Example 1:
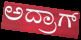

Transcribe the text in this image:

ಅದ್ರಾಗ್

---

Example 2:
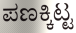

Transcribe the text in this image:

ಪಣಕ್ಕಿಟ್ಟ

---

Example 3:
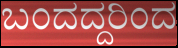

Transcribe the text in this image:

ಬಂದದ್ದರಿಂದ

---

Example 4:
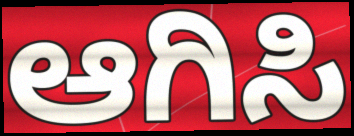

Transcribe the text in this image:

ಆಗಿಸಿ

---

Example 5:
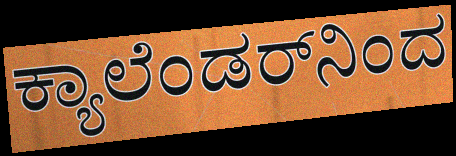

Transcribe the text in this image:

ಕ್ಯಾಲೆಂಡರ್‌ನಿಂದ